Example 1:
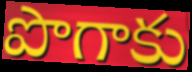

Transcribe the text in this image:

పొగాకు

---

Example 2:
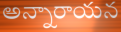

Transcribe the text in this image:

అన్నారాయన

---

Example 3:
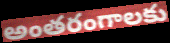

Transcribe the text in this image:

అంతరంగాలకు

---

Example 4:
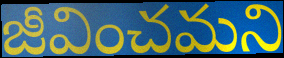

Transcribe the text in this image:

జీవించమని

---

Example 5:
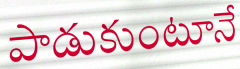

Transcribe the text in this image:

పాడుకుంటూనే